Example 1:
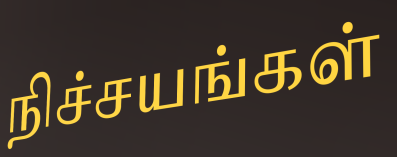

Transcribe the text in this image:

நிச்சயங்கள்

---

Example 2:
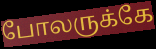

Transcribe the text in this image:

போலருக்கே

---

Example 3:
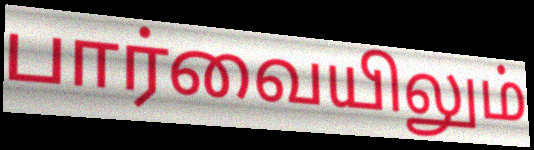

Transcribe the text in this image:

பார்வையிலும்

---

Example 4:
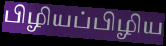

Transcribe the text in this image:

பிழியப்பிழிய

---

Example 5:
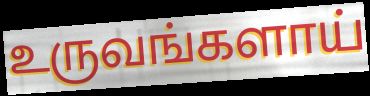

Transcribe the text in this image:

உருவங்களாய்